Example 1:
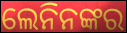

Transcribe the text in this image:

ଲେନିନଙ୍କର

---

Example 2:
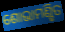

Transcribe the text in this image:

ଶୋଭାମଣ୍ଡିତ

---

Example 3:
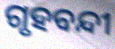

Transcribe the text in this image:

ଗୃହବନ୍ଦୀ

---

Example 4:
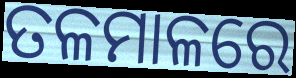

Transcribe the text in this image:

ତଳମାଳରେ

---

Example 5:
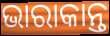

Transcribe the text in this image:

ଭାରାକାନ୍ତ